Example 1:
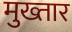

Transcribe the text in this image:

मुख्तार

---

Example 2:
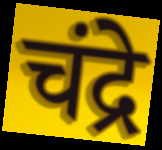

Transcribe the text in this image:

चंद्रे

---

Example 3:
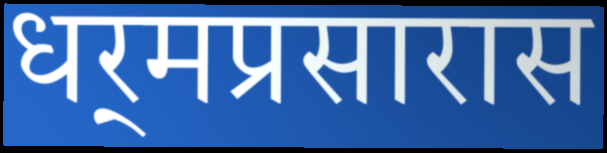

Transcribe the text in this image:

धर्मप्रसारास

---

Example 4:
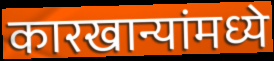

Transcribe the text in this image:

कारखान्यांमध्ये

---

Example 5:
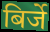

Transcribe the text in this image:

बिर्जे